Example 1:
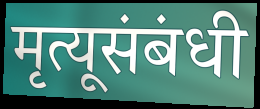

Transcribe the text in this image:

मृत्यूसंबंधी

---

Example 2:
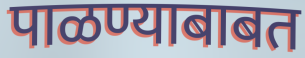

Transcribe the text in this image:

पाळण्याबाबत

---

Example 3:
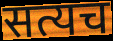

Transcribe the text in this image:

सत्यच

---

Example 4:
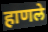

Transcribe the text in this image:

हाणले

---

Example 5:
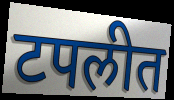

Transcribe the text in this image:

टपलीत